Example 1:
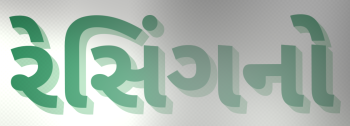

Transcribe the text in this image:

રેસિંગનો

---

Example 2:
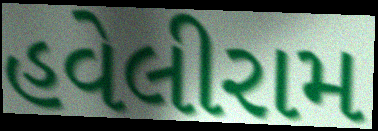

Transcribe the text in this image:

હવેલીરામ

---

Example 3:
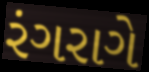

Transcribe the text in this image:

રંગરાગે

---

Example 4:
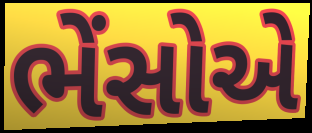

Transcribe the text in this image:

ભેંસોએ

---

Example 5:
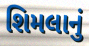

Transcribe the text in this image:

શિમલાનું